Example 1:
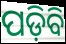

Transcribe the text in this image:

ପଡ଼ିବି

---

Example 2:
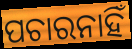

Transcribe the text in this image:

ପଚାରନାହିଁ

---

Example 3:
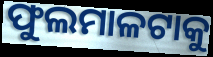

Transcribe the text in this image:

ଫୁଲମାଳଟାକୁ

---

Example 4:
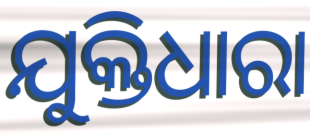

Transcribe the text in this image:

ଯୁକ୍ତିଧାରା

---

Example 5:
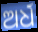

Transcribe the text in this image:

ଅର୍ଧ